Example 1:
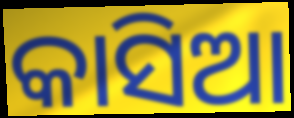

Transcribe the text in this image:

କାସିଆ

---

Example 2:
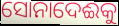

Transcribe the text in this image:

ସୋନାଦେଈକୁ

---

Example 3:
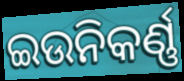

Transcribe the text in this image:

ଇଉନିକର୍ଣ୍ଣ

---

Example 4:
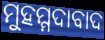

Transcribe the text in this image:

ମୁହମ୍ମଦାବାଦ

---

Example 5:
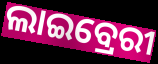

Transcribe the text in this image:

ଲାଇବ୍ରେରୀ